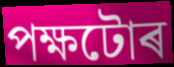
পক্ষটোৰ